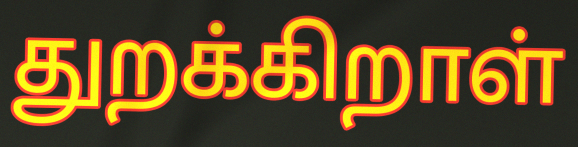
துறக்கிறாள்